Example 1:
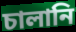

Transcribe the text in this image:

চালানি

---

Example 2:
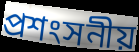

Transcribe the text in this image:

প্রশংসনীয়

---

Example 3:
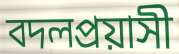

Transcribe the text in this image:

বদলপ্রয়াসী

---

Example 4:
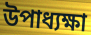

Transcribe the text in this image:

উপাধ্যক্ষা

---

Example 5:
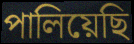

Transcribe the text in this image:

পালিয়েছি